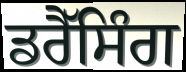
ਡਰੈੱਸਿੰਗ